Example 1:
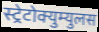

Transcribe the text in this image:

स्ट्रेटोक्युम्युलस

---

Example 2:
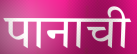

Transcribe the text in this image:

पानाची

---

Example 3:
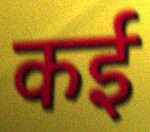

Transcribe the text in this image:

कई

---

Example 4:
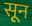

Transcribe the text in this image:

सून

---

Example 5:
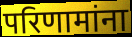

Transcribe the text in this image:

परिणामांना